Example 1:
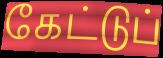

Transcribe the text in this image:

கேட்டுப்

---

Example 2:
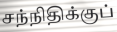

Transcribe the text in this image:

சந்நிதிக்குப்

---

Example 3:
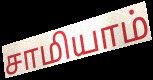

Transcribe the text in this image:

சாமியாம்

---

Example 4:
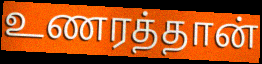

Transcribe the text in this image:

உணரத்தான்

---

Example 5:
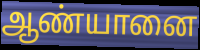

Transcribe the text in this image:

ஆண்யானை